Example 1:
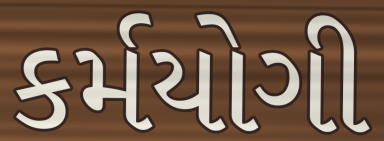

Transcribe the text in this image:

કર્મયોગી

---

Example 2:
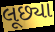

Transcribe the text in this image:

લૂછ્યા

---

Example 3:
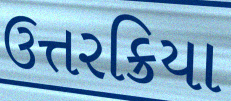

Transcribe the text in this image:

ઉત્તરક્રિયા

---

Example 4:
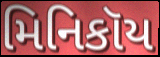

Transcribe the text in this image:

મિનિકૉય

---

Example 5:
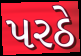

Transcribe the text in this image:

પરઠે